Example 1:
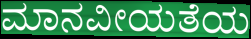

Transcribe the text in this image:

ಮಾನವೀಯತೆಯ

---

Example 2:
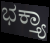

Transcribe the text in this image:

ಭಕ್ತ್ಯಾ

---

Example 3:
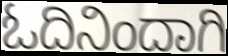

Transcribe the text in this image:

ಓದಿನಿಂದಾಗಿ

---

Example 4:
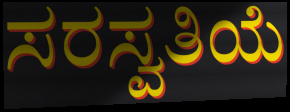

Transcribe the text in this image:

ಸರಸ್ವತಿಯೆ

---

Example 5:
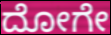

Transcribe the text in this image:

ದೋಗೇ